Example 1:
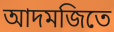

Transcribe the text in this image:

আদমজিতে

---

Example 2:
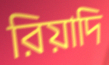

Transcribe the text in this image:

রিয়াদি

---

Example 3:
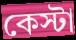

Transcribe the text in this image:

কেস্টা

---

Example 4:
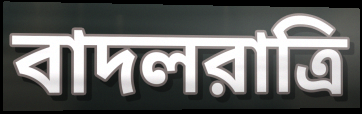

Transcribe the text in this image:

বাদলরাত্রি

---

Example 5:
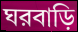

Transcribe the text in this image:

ঘরবাড়ি